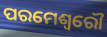
ପରମେଶ୍ଵରୌ